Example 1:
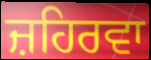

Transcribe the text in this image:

ਜ਼ਹਿਰਵਾ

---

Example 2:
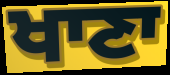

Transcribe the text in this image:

ਖਾਣਾ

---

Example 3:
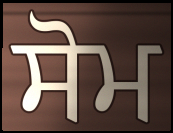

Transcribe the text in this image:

ਸੋਮ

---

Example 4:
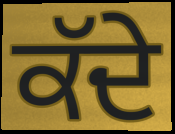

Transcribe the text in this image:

ਕੱਦੇ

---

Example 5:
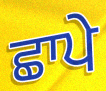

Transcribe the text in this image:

ਛਾਪੇ